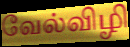
வேல்விழி